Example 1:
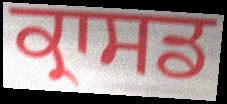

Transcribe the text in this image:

ਕ੍ਰਾਸਡ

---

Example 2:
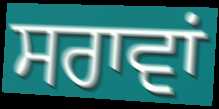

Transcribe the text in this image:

ਸਰਾਵਾਂ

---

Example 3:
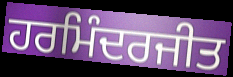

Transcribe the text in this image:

ਹਰਮਿੰਦਰਜੀਤ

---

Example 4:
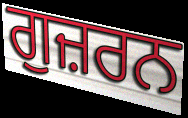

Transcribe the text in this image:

ਗੁਜ਼ਰਨ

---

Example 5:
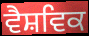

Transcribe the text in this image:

ਵੈਸ਼ਵਿਕ